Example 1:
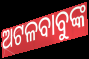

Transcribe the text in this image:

ଅଟଳବାବୁଙ୍କ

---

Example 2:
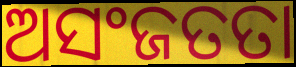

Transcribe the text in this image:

ଅସଂଜତତା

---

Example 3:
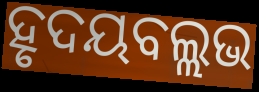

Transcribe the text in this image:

ହୃଦୟବଲ୍ଲଭ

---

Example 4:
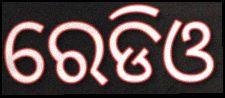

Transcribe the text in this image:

ରେଡିଓ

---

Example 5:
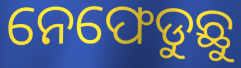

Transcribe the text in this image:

ନେଫେଡୁଛୁ